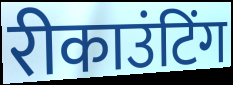
रीकाउंटिंग